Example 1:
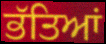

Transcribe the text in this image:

ਭੱਤਿਆਂ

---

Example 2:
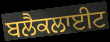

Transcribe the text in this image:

ਬਲੈਕਲਾਈਟ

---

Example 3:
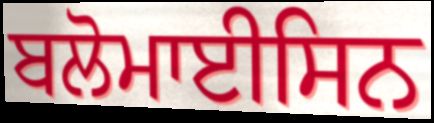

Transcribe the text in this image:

ਬਲੋਮਾਈਸਿਨ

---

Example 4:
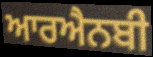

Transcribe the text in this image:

ਆਰਐਨਬੀ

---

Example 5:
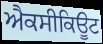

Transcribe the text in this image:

ਐਕਸੀਕਿਊਟ